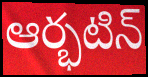
ఆర్భటిన్